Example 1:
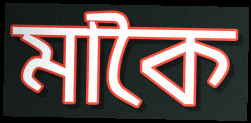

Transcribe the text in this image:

মাকৈ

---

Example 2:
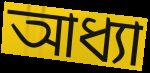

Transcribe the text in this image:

আধ্যা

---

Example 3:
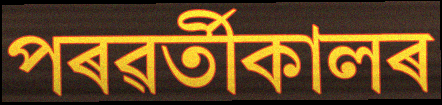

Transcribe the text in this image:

পৰৱৰ্তীকালৰ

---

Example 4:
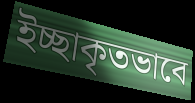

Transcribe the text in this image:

ইচ্ছাকৃতভাবে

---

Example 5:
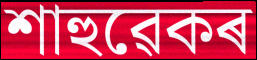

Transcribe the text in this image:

শাহুৱেকৰ